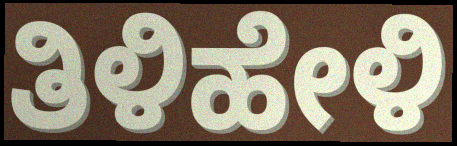
ತಿಳಿಹೇಳಿ